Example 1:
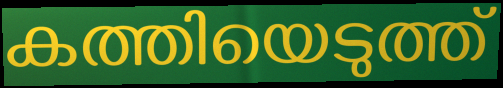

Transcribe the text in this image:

കത്തിയെടുത്ത്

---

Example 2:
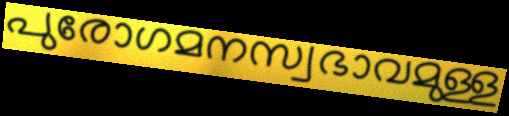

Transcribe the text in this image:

പുരോഗമനസ്വഭാവമുള്ള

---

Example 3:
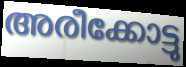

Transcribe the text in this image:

അരീക്കോട്ടു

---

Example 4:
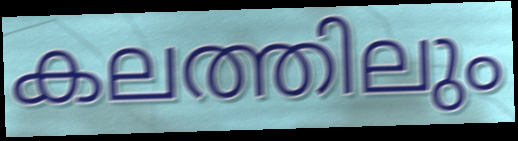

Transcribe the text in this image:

കലത്തിലും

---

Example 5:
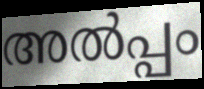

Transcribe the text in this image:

അൽപ്പം